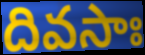
దివసాః